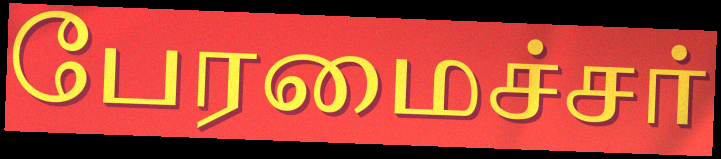
பேரமைச்சர்